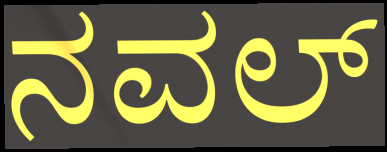
ನವಲ್